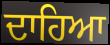
ਦਾਹਿਆ